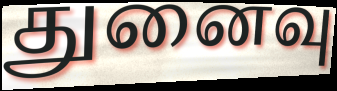
துனைவு